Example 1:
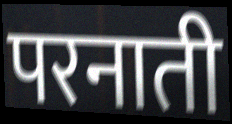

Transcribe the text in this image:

परनाती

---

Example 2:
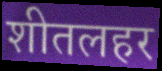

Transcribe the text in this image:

शीतलहर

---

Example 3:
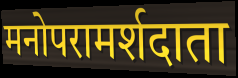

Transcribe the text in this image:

मनोपरामर्शदाता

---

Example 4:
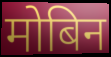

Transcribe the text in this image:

मोबिन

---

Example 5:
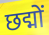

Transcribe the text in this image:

छद्मों